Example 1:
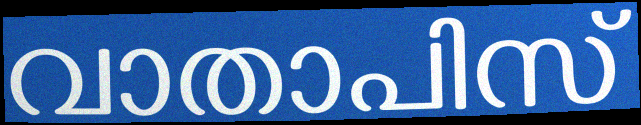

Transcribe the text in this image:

വാതാപിസ്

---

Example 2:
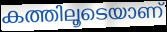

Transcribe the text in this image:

കത്തിലൂടെയാണ്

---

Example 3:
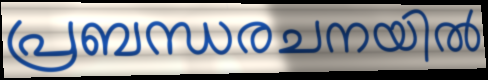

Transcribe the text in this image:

പ്രബന്ധരചനയിൽ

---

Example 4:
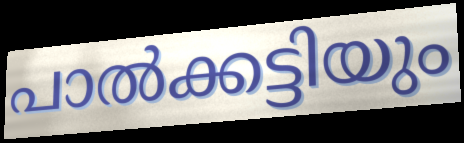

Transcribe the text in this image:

പാൽക്കട്ടിയും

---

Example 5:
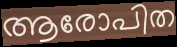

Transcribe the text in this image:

ആരോപിത